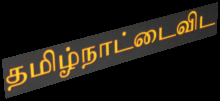
தமிழ்நாட்டைவிட